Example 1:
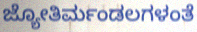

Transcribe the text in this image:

ಜ್ಯೋತಿರ್ಮಂಡಲಗಳಂತೆ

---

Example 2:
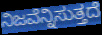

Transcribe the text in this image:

ನಿಜವೆನ್ನಿಸುತ್ತದೆ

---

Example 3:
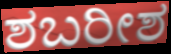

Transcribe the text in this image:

ಶಬರೀಶ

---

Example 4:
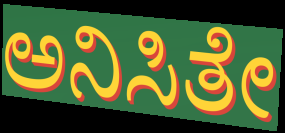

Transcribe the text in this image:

ಅನಿಸಿತೇ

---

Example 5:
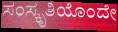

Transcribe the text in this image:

ಸಂಸ್ಕೃತಿಯೊಂದೇ